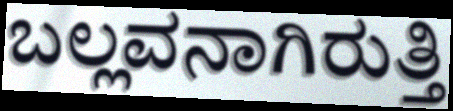
ಬಲ್ಲವನಾಗಿರುತ್ತಿ